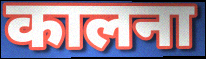
कालना